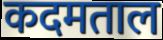
कदमताल